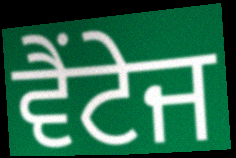
ਵੈਂਟੇਜ